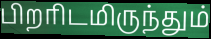
பிறரிடமிருந்தும்